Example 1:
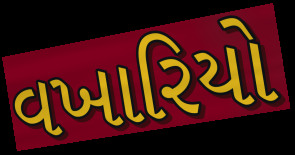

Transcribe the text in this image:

વખારિયો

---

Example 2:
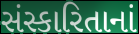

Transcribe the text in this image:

સંસ્કારિતાનાં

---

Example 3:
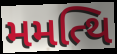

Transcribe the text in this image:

મમત્થિ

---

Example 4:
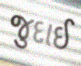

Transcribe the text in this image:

જુદાઈ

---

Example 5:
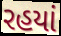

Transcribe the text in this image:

રહયાં